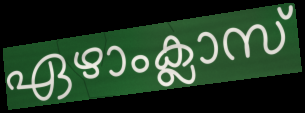
ഏഴാംക്ലാസ്